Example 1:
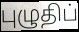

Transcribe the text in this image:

புழுதிப்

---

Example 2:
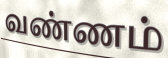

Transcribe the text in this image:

வண்ணம்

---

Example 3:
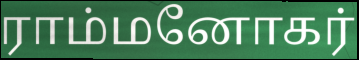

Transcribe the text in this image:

ராம்மனோகர்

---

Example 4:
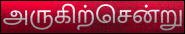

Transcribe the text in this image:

அருகிற்சென்று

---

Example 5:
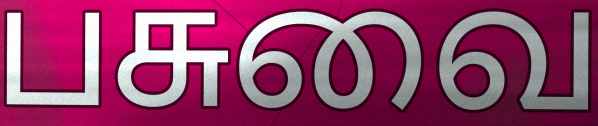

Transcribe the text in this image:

பசுவை